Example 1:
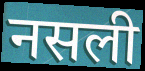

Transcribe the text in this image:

नसली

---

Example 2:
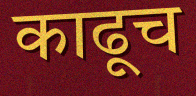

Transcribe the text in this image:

काढूच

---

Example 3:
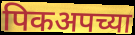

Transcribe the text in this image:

पिकअपच्या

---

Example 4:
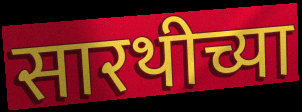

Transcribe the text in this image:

सारथीच्या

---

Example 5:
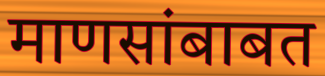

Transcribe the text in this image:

माणसांबाबत